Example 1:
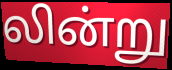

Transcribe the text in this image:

லின்று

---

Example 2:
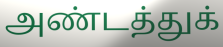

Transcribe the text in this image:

அண்டத்துக்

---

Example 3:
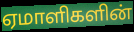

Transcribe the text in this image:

ஏமாளிகளின்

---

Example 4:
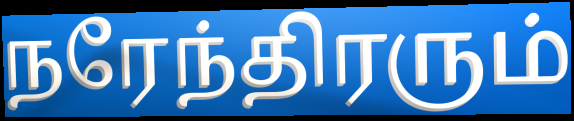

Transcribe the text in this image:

நரேந்திரரும்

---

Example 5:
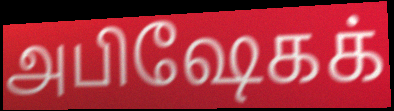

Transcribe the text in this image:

அபிஷேகக்